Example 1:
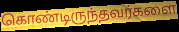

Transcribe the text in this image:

கொண்டிருந்தவர்களை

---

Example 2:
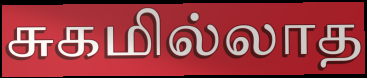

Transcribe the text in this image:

சுகமில்லாத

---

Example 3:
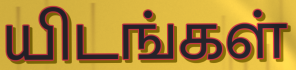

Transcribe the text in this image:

யிடங்கள்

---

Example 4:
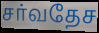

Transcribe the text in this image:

சர்வதேச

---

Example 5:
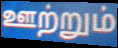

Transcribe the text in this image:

ஊற்றும்